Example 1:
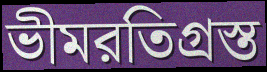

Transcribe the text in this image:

ভীমরতিগ্রস্ত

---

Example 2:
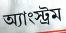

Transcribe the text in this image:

অ্যাংস্ট্রম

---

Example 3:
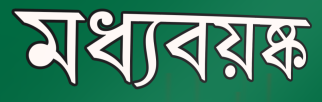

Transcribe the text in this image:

মধ্যবয়ষ্ক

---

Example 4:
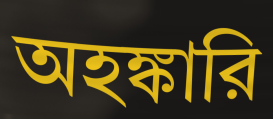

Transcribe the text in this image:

অহঙ্কারি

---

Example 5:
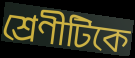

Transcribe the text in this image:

শ্রেণীটিকে